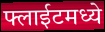
फ्लाईटमध्ये